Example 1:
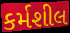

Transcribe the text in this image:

કર્મશીલ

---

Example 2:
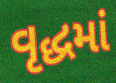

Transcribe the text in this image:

વૃદ્ધમાં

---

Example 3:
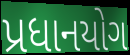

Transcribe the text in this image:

પ્રધાનયોગ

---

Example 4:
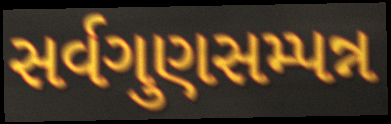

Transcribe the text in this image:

સર્વગુણસમ્પન્ન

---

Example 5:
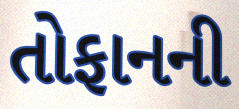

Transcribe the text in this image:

તોફાનની